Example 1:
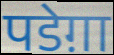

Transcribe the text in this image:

पडेग़ा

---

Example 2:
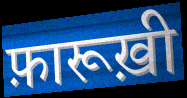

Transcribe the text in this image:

फ़ारूख़ी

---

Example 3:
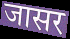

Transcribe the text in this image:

जासर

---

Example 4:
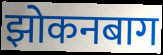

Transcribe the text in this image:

झोकनबाग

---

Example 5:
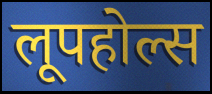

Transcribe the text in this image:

लूपहोल्स